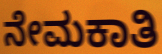
ನೇಮಕಾತಿ